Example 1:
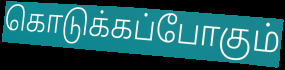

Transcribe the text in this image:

கொடுக்கப்போகும்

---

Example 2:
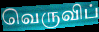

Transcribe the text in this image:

வெருவிப்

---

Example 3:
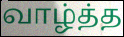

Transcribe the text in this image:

வாழ்த்த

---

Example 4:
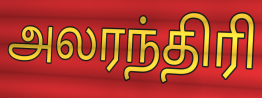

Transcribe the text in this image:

அலரந்திரி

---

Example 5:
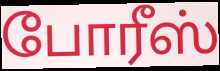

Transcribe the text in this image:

போரீஸ்